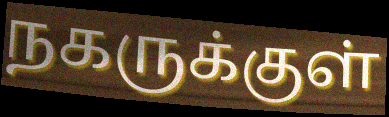
நகருக்குள்